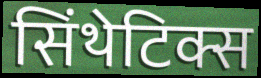
सिंथेटिक्स